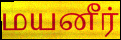
மயனீர்